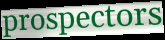
prospectors